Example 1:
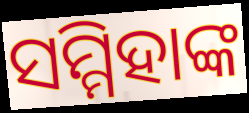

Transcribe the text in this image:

ସମ୍ମିହାଙ୍କ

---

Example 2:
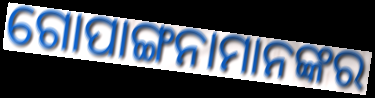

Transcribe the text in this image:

ଗୋପାଙ୍ଗନାମାନଙ୍କର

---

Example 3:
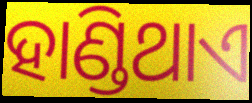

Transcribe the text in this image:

ହାଣ୍ଡିଥାଏ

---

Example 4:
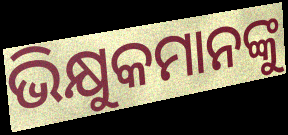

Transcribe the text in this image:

ଭିକ୍ଷୁକମାନଙ୍କୁ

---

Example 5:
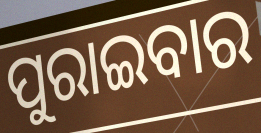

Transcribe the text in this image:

ପୁରାଇବାର